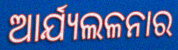
ଆର୍ଯ୍ୟଲଳନାର